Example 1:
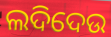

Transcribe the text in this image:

ଲଦିଦେଉ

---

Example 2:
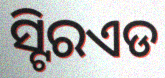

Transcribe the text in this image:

ସ୍ଟିରଏଡ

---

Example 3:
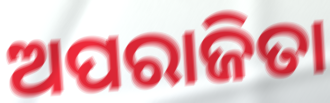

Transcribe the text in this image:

ଅପରାଜିତା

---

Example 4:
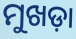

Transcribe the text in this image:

ମୁଖଡ଼ା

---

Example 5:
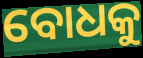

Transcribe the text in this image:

ବୋଧକୁ